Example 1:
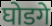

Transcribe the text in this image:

घोडगे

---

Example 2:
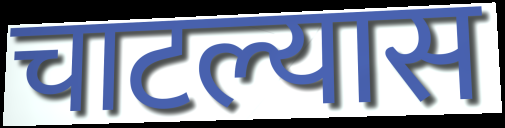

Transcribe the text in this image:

चाटल्यास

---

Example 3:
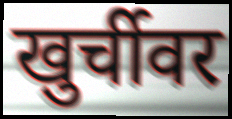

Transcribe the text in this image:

खुर्चीवर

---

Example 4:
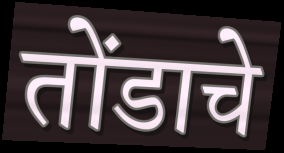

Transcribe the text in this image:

तोंडाचे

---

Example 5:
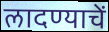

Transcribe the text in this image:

लादण्याचें